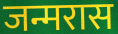
जन्मरास